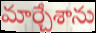
మార్చేశాను